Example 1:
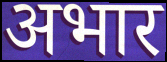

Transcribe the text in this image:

अभार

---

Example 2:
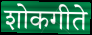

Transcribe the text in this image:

शोकगीते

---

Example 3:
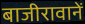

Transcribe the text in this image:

बाजीरावानें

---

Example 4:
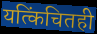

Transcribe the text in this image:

यत्किंचितही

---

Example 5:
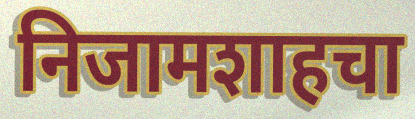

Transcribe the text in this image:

निजामशाहचा